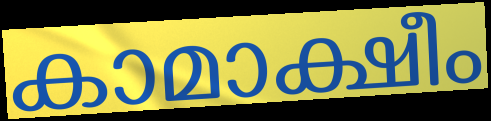
കാമാക്ഷീം